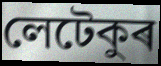
লেটেকুৰ